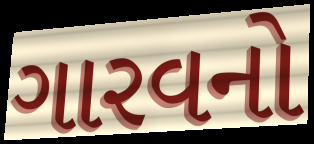
ગારવનો